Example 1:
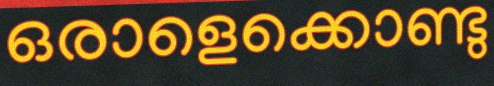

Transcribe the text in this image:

ഒരാളെക്കൊണ്ടു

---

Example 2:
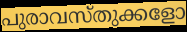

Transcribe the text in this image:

പുരാവസ്തുക്കളോ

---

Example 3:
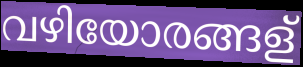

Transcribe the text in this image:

വഴിയോരങ്ങള്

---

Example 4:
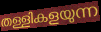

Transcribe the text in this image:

തള്ളികളയുന്ന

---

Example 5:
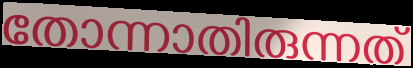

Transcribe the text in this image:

തോന്നാതിരുന്നത്